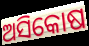
ଅସିକୋଷ